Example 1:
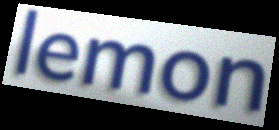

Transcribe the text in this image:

lemon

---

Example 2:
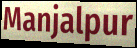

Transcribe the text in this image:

Manjalpur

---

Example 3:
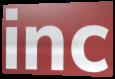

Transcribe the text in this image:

inc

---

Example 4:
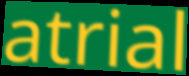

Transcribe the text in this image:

atrial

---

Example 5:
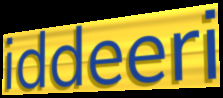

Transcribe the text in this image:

iddeeri